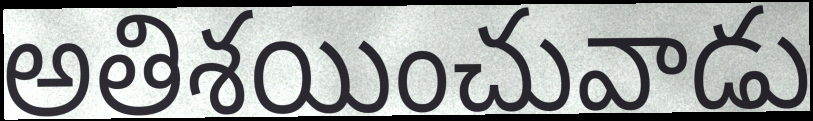
అతిశయించువాడు